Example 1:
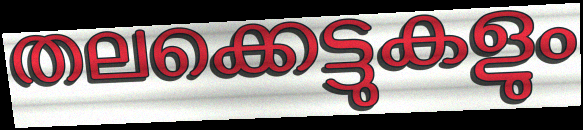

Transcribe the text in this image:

തലക്കെട്ടുകളും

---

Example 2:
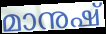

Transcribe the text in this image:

മാനുഷ്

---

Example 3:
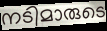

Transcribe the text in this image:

നടിമാരുടെ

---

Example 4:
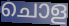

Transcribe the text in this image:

ചൊള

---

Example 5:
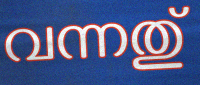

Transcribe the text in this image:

വന്നതു്